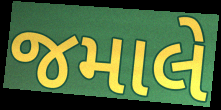
જમાલે